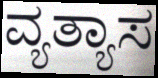
ವ್ಯತ್ಯಾಸ